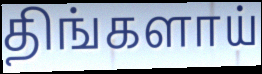
திங்களாய்